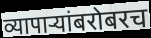
व्यापाऱ्यांबरोबरच